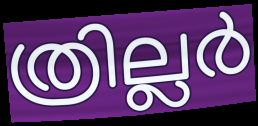
ത്രില്ലർ